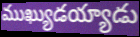
ముఖ్యుడయ్యాడు